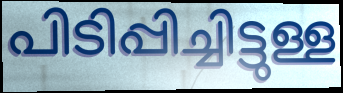
പിടിപ്പിച്ചിട്ടുള്ള